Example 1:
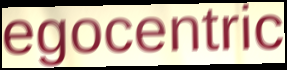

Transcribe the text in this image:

egocentric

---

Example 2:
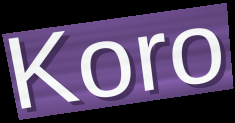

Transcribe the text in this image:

Koro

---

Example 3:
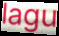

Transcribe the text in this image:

lagu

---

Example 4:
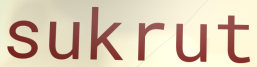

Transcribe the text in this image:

sukrut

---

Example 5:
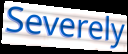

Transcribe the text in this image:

Severely